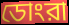
ডোংরা